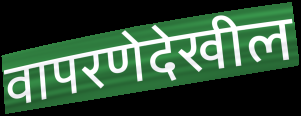
वापरणेदेखील